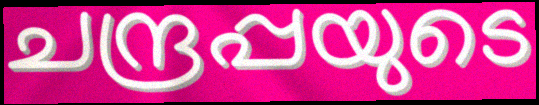
ചന്ദ്രപ്പയുടെ